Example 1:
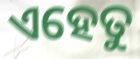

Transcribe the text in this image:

ଏହେତୁ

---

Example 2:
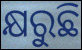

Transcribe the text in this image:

କ୍ଷରୁଛି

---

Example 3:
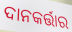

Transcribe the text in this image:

ଦାନକର୍ତ୍ତାର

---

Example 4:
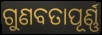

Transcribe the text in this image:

ଗୁଣବତାପୂର୍ଣ୍ଣ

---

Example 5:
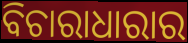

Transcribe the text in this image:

ବିଚାରାଧାରାର